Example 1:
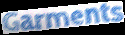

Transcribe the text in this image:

Garments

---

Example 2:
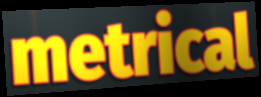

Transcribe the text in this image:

metrical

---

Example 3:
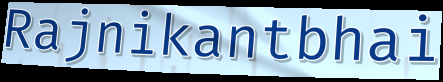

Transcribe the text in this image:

Rajnikantbhai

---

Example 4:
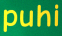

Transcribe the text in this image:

puhi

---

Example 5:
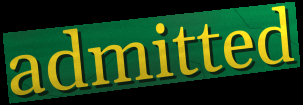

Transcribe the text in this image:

admitted